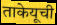
ताकेयूची